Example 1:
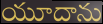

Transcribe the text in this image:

యూదాను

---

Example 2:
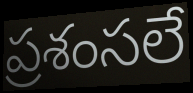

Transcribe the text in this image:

ప్రశంసలే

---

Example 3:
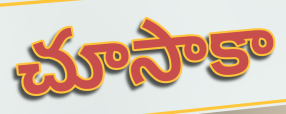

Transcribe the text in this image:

చూసాకా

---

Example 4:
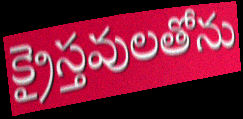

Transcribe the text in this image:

క్రైస్తవులతోను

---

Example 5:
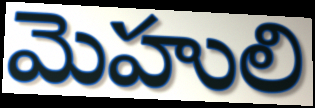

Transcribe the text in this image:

మెహులి